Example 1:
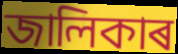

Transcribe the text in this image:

জালিকাৰ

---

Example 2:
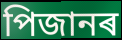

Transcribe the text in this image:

পিজানৰ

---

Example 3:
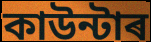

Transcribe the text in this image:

কাউন্টাৰ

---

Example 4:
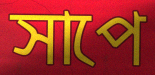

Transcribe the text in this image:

সাপে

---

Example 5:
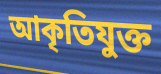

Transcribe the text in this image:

আকৃতিযুক্ত